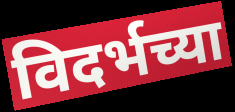
विदर्भच्या